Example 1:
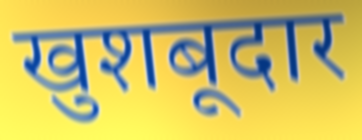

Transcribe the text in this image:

खुशबूदार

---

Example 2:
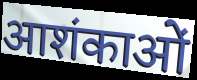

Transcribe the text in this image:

आशंकाओं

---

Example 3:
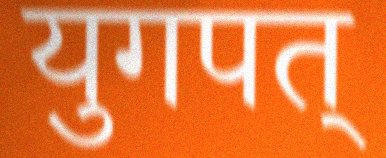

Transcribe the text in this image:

युगपत्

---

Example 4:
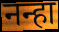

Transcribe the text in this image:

नन्हा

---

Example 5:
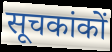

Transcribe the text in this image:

सूचकांकों